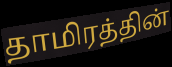
தாமிரத்தின்